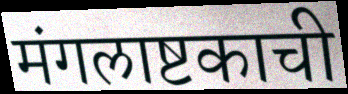
मंगलाष्टकाची